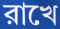
রাখে